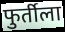
फुर्तीला